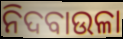
ନିଦବାଉଳା